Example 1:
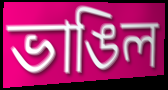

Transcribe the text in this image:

ভাঙিল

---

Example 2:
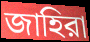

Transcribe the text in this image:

জাহিরা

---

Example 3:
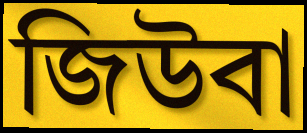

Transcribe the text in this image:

জিউবা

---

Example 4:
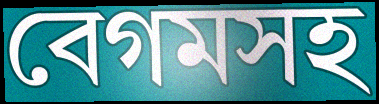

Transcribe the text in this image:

বেগমসহ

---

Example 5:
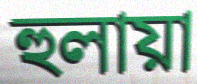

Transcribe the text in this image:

হুলায়া